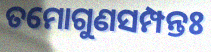
ତମୋଗୁଣସମ୍ପନ୍ତଃ